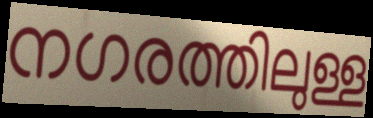
നഗരത്തിലുള്ള